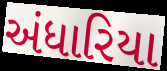
અંધારિયા